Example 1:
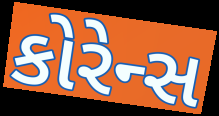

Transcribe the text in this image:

કોરેન્સ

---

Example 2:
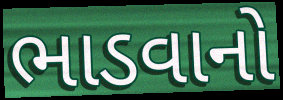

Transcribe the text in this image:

ભાડવાનો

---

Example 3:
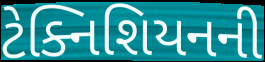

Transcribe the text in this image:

ટેક્નિશિયનની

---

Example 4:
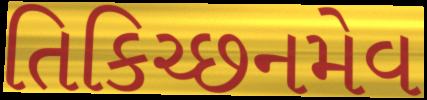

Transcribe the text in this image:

તિકિચ્છનમેવ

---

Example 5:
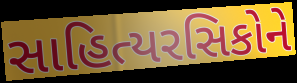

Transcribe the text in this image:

સાહિત્યરસિકોને